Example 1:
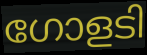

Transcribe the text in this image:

ഗോളടി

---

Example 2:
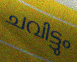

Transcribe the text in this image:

ചവിട്ടും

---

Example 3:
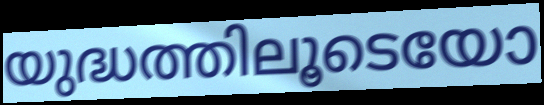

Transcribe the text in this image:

യുദ്ധത്തിലൂടെയോ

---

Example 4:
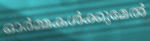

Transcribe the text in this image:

ഓർമ്മകൾക്കുമേൽ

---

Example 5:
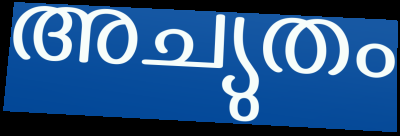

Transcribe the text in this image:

അച്യുതം